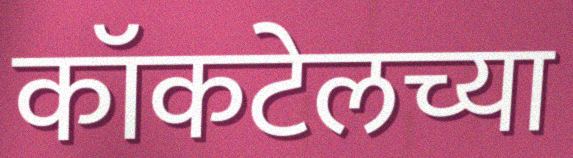
कॉकटेलच्या